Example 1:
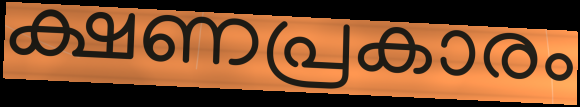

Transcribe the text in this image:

ക്ഷണപ്രകാരം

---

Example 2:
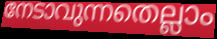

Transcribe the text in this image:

നേടാവുന്നതെല്ലാം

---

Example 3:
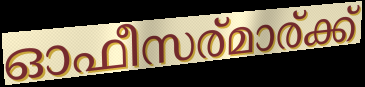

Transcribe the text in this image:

ഓഫീസര്മാര്ക്ക്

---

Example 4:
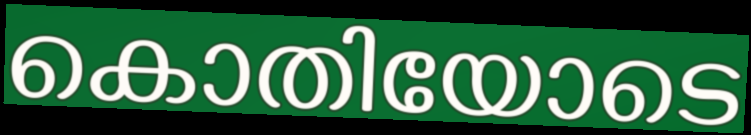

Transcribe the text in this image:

കൊതിയോടെ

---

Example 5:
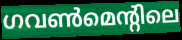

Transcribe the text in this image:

ഗവൺമെന്റിലെ